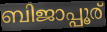
ബിജാപ്പൂര്